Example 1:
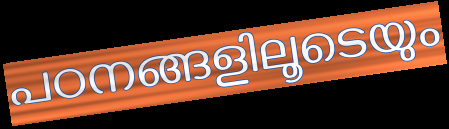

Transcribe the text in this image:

പഠനങ്ങളിലൂടെയും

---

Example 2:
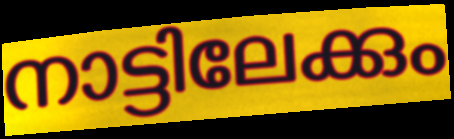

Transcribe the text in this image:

നാട്ടിലേക്കും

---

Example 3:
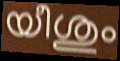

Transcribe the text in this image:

യീശും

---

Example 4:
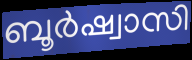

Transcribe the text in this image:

ബൂർഷ്വാസി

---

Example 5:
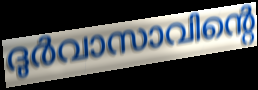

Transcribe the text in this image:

ദുർവാസാവിന്റെ